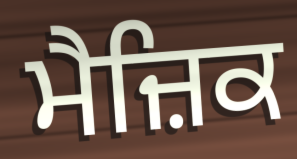
ਮੈਜ਼ਿਕ